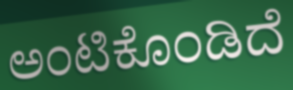
ಅಂಟಿಕೊಂಡಿದೆ